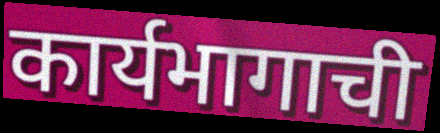
कार्यभागाची